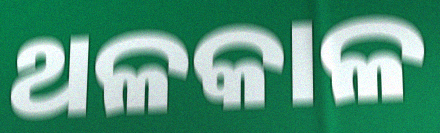
ଥଳକାଳ